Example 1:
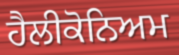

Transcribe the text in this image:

ਹੈਲੀਕੋਨਿਅਮ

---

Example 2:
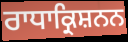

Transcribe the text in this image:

ਰਾਧਾਕ੍ਰਿਸ਼ਨਨ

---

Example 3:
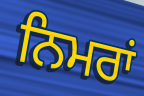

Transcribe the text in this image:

ਨਿਮਰਾਂ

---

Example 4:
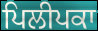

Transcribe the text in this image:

ਪਿਲੀਪਕਾ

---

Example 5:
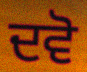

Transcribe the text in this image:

ਦਵੋ